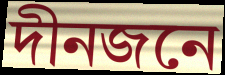
দীনজনে